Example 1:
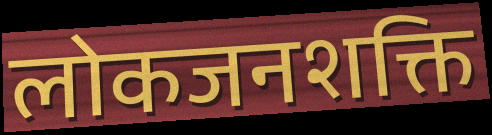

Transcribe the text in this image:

लोकजनशक्ति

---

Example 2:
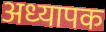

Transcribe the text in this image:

अध्‍यापक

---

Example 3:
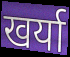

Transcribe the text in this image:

खर्या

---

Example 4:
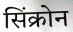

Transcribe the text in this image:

सिंक्रोन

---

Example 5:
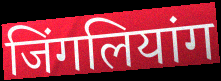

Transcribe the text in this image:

जिंगलियांग